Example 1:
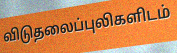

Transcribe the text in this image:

விடுதலைப்புலிகளிடம்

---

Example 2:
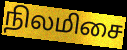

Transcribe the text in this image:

நிலமிசை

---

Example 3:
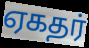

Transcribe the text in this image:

ஏகதர்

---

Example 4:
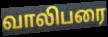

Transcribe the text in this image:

வாலிபரை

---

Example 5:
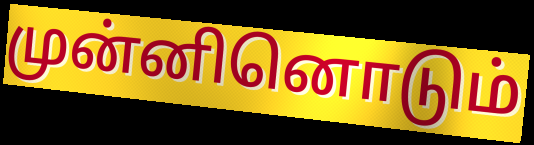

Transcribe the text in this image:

முன்னினொடும்